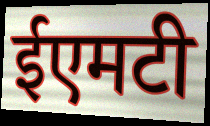
ईएमटी